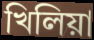
খিলিয়া